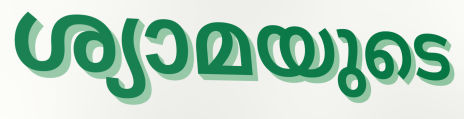
ശ്യാമയുടെ